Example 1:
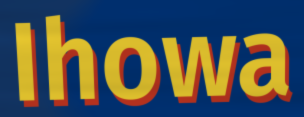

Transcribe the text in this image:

Ihowa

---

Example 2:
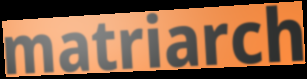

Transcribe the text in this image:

matriarch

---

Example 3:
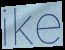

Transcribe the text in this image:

ike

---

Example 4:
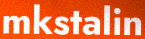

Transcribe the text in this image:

mkstalin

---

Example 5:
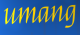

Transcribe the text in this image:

umang